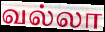
வல்லா